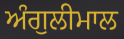
ਅੰਗੁਲੀਮਾਲ